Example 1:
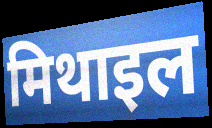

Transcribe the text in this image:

मिथाइल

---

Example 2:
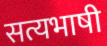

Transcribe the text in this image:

सत्यभाषी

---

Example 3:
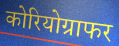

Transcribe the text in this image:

कोरियोग्राफर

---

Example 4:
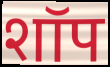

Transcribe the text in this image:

शॉप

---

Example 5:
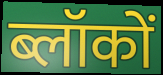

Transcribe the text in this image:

ब्लॉकों